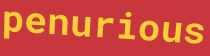
penurious